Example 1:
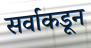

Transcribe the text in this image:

सर्वाकडून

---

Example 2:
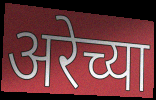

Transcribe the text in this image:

अरेच्या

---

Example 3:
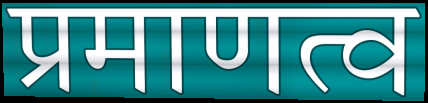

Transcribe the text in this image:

प्रमाणत्व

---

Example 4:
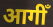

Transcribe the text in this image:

आगीँ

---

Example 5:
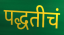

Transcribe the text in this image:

पद्धतीचं